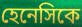
হেনেসিকে